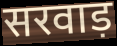
सरवाड़